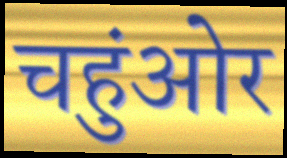
चहुंओर